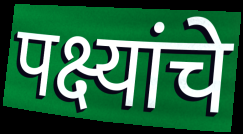
पक्ष्यांचे